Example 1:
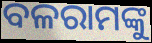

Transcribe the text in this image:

ବଳରାମଙ୍କୁ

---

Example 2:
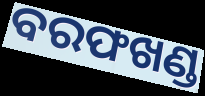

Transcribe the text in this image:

ବରଫଖଣ୍ଡ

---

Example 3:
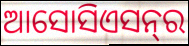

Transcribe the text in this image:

ଆସୋସିଏସନ୍‍ର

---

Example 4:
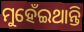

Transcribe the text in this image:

ମୁହେଁଇଥାନ୍ତି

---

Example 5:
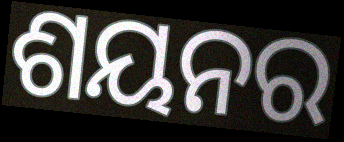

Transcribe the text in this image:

ଶୟନର